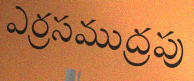
ఎర్రసముద్రపు